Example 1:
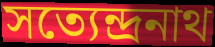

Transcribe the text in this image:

সত্যেন্দ্ৰনাথ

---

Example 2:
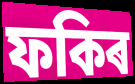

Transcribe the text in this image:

ফকিৰ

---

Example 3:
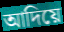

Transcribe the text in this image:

আদিয়ে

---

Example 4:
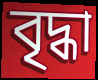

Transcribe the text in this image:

বৃদ্ধা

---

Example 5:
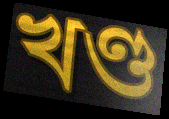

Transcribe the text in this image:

খণ্ড